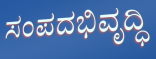
ಸಂಪದಭಿವೃದ್ಧಿ